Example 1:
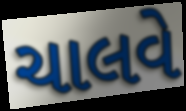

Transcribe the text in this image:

ચાલવે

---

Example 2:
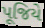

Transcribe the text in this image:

પૂજિયે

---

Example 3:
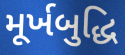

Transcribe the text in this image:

મૂર્ખબુદ્ધિ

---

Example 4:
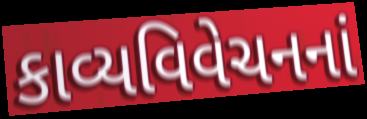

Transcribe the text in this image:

કાવ્યવિવેચનનાં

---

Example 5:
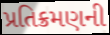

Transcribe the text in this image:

પ્રતિક્રમણની